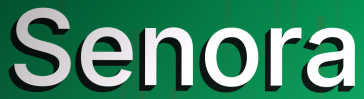
Senora